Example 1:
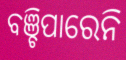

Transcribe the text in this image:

ବଞ୍ଚିପାରେନି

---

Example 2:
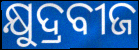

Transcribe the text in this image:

କ୍ଷୁଦ୍ରବୀଜ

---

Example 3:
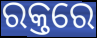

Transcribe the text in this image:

ରକ୍ତରେ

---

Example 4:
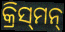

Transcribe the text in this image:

କ୍ରିସ୍‍ମନ୍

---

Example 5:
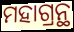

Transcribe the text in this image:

ମହାଗ୍ରନ୍ଥ